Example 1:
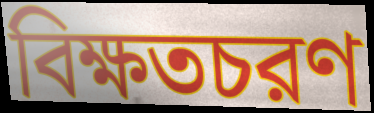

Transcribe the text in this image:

বিক্ষতচরণ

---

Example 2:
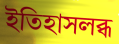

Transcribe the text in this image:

ইতিহাসলব্ধ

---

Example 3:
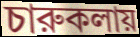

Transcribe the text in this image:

চারুকলায়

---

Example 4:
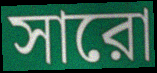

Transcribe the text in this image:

সারো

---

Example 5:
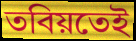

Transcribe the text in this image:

তবিয়তেই